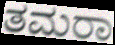
ತಮರಾ